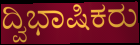
ದ್ವಿಭಾಷಿಕರು